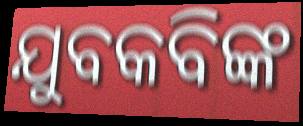
ଯୁବକବିଙ୍କ